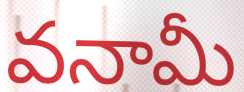
వనామీ